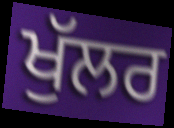
ਖੁੱਲਰ